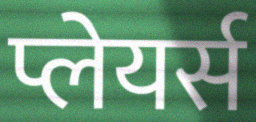
प्लेयर्स